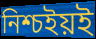
নিশ্চইয়ই